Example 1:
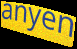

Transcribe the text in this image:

anyen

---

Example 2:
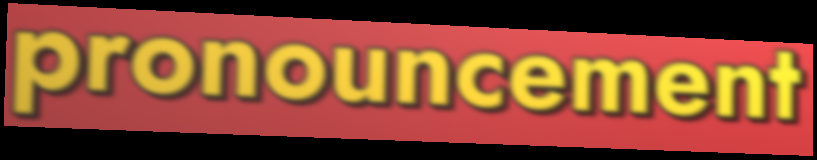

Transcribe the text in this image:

pronouncement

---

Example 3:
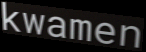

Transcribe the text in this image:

kwamen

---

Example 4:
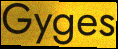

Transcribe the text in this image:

Gyges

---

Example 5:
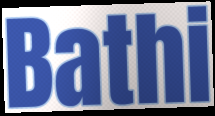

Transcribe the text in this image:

Bathi